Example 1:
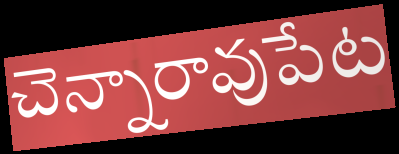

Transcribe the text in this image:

చెన్నారావుపేట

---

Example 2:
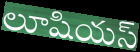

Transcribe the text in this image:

లూషియస్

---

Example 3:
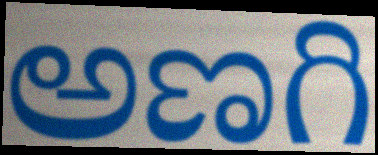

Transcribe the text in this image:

అణగి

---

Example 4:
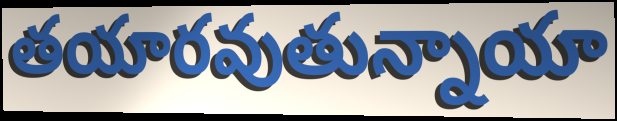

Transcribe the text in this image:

తయారవుతున్నాయా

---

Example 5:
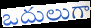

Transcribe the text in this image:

ఒదులుగా